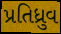
પ્રતિધ્રુવ